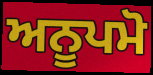
ਅਨੂਪਮੋ